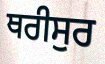
ਥਰੀਸੁਰ